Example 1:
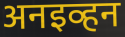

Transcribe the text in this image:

अनइव्हन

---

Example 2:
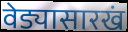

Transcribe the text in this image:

वेड्यासारखं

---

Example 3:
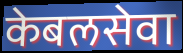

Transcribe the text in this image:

केबलसेवा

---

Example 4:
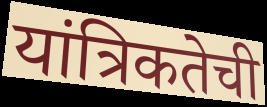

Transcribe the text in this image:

यांत्रिकतेची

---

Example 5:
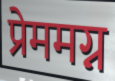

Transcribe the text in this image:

प्रेममग्न